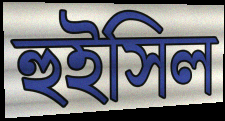
হুইসিল